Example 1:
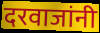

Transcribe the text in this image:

दरवाजांनी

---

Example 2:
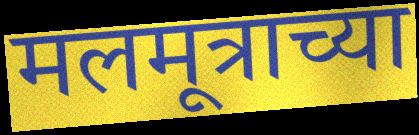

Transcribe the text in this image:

मलमूत्राच्या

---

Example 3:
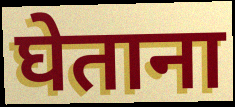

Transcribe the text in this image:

घेताना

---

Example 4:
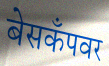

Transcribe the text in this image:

बेसकॅंपवर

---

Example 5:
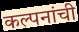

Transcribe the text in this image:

कल्पनांची